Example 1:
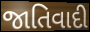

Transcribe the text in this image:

જાતિવાદી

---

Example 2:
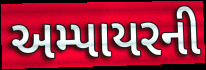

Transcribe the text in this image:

અમ્પાયરની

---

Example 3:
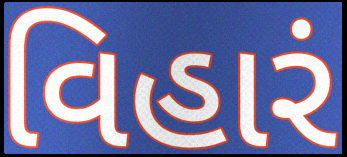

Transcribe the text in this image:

વિહારં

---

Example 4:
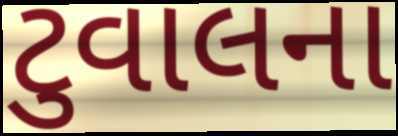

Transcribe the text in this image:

ટુવાલના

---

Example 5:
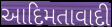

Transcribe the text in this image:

આદિમતાવાદી